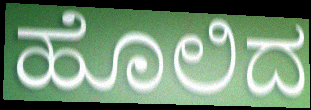
ಹೊಲಿದ